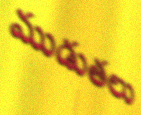
ముడుతలు